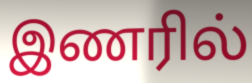
இணரில்